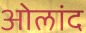
ओलांद